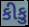
કીકુ